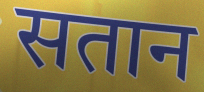
सतान